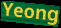
Yeong